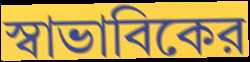
স্বাভাবিকের